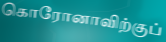
கொரோனாவிற்குப்